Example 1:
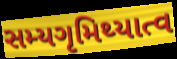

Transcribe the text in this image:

સમ્યગૃમિથ્યાત્વ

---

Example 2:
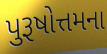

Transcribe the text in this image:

પુરૂષોત્તમના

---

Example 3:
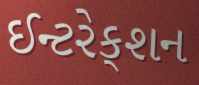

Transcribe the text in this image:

ઈન્ટરેક્‌શન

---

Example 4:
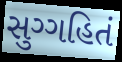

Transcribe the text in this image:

સુગ્ગહિતં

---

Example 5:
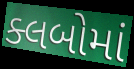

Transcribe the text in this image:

ક્લબોમાં